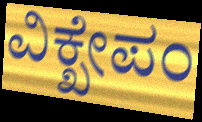
ವಿಕ್ಖೇಪಂ